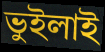
ভুইলাই